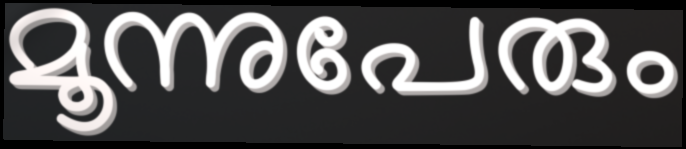
മൂന്നുപേരും